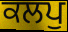
ਕਲਪੁ